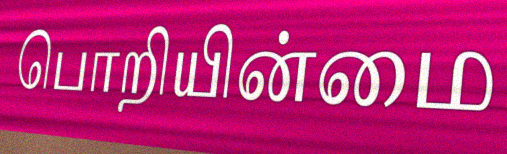
பொறியின்மை